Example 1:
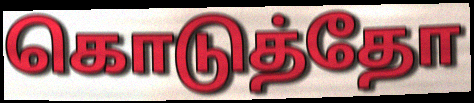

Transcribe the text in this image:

கொடுத்தோ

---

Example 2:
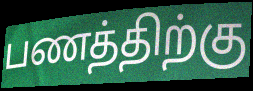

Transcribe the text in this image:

பணத்திற்கு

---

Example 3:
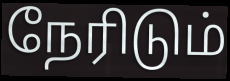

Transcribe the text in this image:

நேரிடும்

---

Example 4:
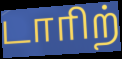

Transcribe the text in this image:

டாரிற்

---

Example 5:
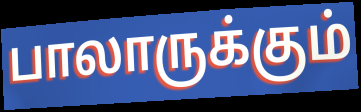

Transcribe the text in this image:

பாலாருக்கும்